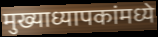
मुख्याध्यापकांमध्ये